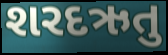
શરદઋતુ